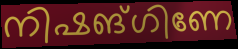
നിഷങ്ഗിണേ